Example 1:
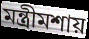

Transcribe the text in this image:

মন্ত্রীমশায়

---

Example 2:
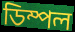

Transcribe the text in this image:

ডিম্পল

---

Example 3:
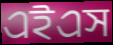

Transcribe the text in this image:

এইএস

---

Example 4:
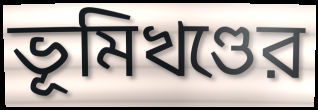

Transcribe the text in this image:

ভূমিখণ্ডের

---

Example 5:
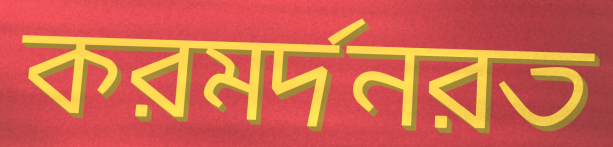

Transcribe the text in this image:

করমর্দনরত